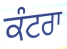
ਕੰਟਰਾ